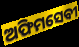
ଅଫିମସେବୀ